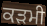
ਕੜਮੀ